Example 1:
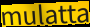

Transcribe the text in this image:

mulatta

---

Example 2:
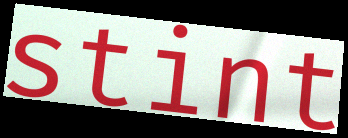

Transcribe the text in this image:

stint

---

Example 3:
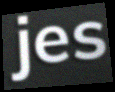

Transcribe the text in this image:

jes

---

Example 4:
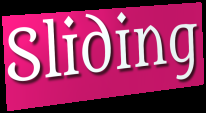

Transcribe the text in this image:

Sliding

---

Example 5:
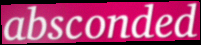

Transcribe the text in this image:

absconded